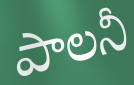
పాలనీ